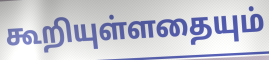
கூறியுள்ளதையும்